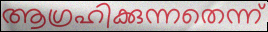
ആഗ്രഹിക്കുന്നതെന്ന്